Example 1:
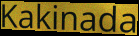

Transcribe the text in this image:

Kakinada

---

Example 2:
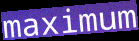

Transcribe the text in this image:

maximum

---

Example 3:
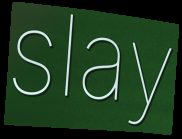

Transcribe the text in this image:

slay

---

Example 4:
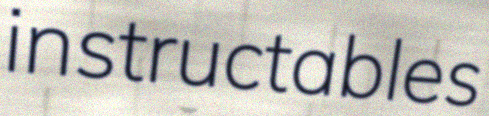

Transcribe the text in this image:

instructables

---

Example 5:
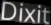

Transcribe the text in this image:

Dixit